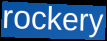
rockery